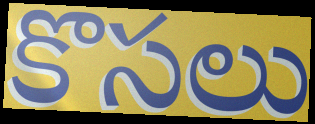
కొసలు